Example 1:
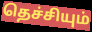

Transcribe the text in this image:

தெச்சியும்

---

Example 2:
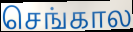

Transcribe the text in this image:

செங்கால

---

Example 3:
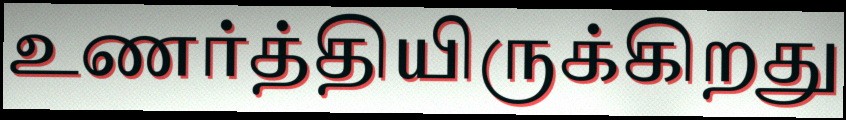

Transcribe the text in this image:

உணர்த்தியிருக்கிறது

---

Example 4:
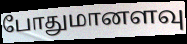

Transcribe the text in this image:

போதுமானளவு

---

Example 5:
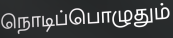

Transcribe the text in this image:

நொடிப்பொழுதும்